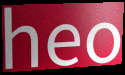
heo